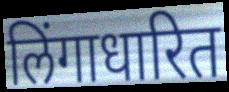
लिंगाधारित